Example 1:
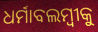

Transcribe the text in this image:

ଧର୍ମାବଲମ୍ବୀକୁ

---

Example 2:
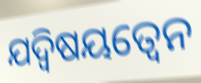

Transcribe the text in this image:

ଯଦ୍ଵିଷୟତ୍ଵେନ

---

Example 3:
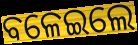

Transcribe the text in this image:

ବଳେଇଲେ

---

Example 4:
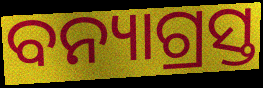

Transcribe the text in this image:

ବନ୍ୟାଗ୍ରସ୍ତ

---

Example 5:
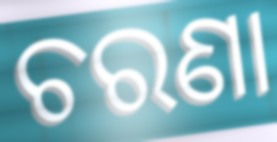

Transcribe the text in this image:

ଚରଣା